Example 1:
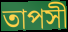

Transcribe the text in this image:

তাপসী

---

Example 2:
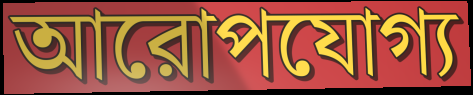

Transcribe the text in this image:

আরোপযোগ্য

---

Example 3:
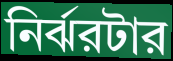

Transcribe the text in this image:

নির্ঝরটার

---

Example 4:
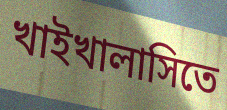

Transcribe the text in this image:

খাইখালাসিতে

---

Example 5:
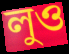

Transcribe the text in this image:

লুও